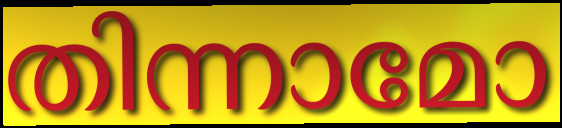
തിന്നാമോ